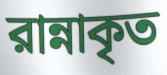
রান্নাকৃত